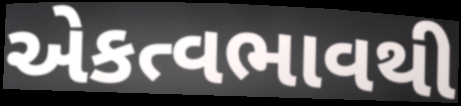
એકત્વભાવથી